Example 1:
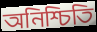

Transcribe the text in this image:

অনিশ্চিতি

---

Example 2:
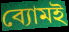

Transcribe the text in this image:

ব্যোমই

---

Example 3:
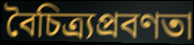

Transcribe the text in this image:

বৈচিত্র্যপ্রবণতা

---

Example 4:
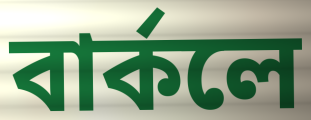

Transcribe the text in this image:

বার্কলে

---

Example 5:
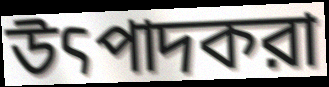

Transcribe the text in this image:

উৎপাদকরা